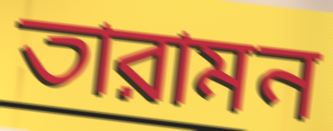
তারামন